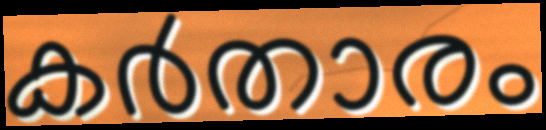
കർതാരം